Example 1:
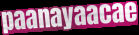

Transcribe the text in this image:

paanayaacae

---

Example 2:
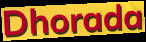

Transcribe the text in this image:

Dhorada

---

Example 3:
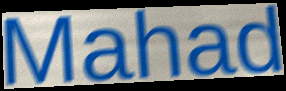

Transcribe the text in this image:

Mahad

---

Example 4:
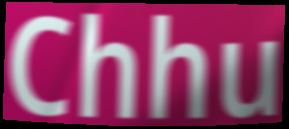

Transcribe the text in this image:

Chhu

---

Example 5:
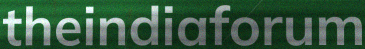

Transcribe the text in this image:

theindiaforum